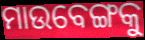
ମାଉବେଙ୍ଗକୁ